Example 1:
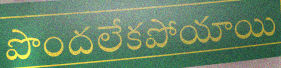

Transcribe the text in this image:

పొందలేకపోయాయి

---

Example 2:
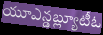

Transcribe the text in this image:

యూఎన్డబ్ల్యూటీఓ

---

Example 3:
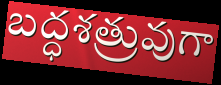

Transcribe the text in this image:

బద్ధశత్రువుగా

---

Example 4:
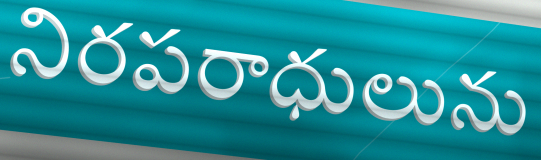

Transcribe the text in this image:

నిరపరాధులును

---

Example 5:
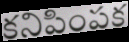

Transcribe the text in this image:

కనిపింపక